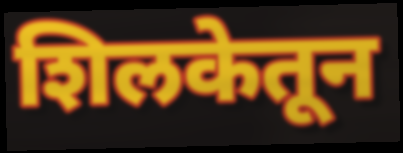
शिलकेतून